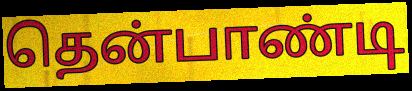
தென்பாண்டி